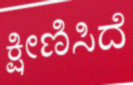
ಕ್ಷೀಣಿಸಿದೆ